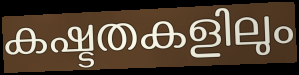
കഷ്ടതകളിലും